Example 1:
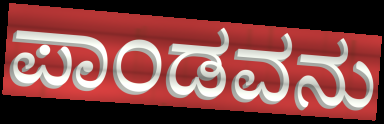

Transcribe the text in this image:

ಪಾಂಡವನು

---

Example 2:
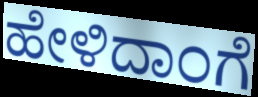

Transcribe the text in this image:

ಹೇಳಿದಾಂಗೆ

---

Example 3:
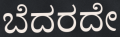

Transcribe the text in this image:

ಬೆದರದೇ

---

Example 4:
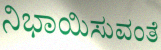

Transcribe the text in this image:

ನಿಭಾಯಿಸುವಂತೆ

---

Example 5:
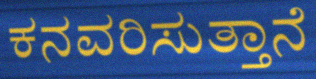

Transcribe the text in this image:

ಕನವರಿಸುತ್ತಾನೆ